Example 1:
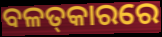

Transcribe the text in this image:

ବଳତ୍‌କାରରେ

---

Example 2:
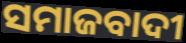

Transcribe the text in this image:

ସମାଜବାଦୀ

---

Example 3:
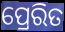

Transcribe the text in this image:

ପ୍ରେରିତ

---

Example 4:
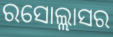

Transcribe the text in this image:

ରସୋଲ୍ଲାସର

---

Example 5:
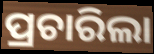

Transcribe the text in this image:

ପ୍ରଚାରିଲା